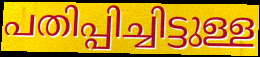
പതിപ്പിച്ചിട്ടുള്ള